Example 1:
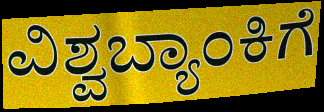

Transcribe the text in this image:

ವಿಶ್ವಬ್ಯಾಂಕಿಗೆ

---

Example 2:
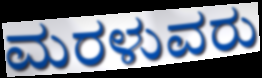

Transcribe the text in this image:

ಮರಳುವರು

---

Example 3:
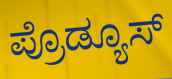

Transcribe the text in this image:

ಪ್ರೊಡ್ಯೂಸ್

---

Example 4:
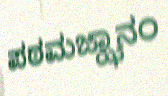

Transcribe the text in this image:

ಪಠಮಜ್ಝಾನಂ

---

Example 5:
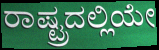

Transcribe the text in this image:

ರಾಷ್ಟ್ರದಲ್ಲಿಯೇ